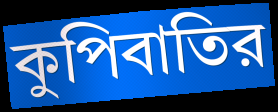
কুপিবাতির